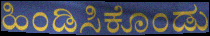
ಹಿಂಡಿಸಿಕೊಂಡು